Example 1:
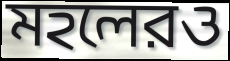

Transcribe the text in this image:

মহলেরও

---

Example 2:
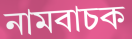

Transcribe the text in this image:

নামবাচক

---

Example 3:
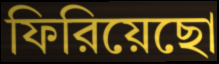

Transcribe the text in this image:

ফিরিয়েছো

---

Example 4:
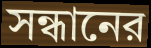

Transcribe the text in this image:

সন্ধানের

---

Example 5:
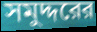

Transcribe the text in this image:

সমুদ্দরের